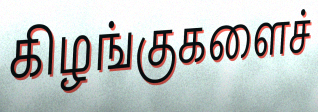
கிழங்குகளைச்